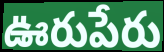
ఊరుపేరు